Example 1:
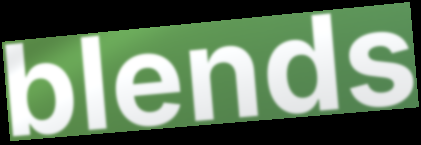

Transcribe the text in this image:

blends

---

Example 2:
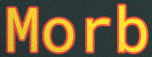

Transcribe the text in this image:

Morb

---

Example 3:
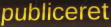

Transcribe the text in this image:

publiceret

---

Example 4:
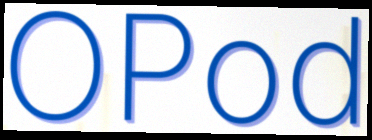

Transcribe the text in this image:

OPod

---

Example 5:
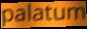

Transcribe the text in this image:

palatum